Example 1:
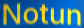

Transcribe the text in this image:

Notun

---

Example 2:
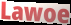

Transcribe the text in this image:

Lawoe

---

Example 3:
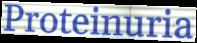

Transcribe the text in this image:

Proteinuria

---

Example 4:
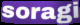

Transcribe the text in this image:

soragi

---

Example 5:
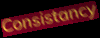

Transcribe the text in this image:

Consistancy